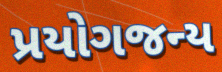
પ્રયોગજન્ય